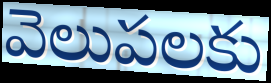
వెలుపలకు